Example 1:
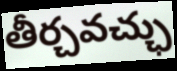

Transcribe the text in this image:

తీర్చవచ్ఛు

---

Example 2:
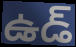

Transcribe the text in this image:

ఉడ్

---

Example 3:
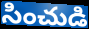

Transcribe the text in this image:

సించుడి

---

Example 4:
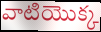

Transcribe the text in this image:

వాటియొక్క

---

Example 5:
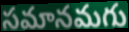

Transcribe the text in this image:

సమానమగు